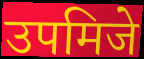
उपमिजे